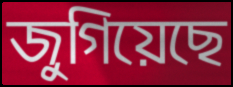
জুগিয়েছে